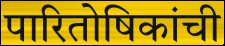
पारितोषिकांची